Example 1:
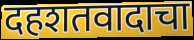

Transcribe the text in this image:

दहशतवादाचा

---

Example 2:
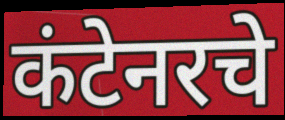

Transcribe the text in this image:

कंटेनरचे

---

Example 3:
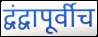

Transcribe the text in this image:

द्वंद्वापूर्वीच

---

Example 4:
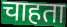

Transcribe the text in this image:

चाहता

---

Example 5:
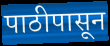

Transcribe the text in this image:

पाठीपासून